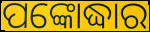
ପଙ୍କୋଦ୍ଧାର